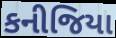
કનીજિયા